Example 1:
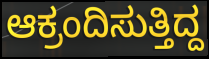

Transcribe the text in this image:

ಆಕ್ರಂದಿಸುತ್ತಿದ್ದ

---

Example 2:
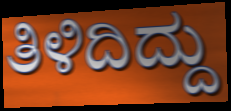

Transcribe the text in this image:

ತಿಳಿದಿದ್ದು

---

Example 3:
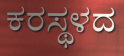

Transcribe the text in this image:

ಕರಸ್ಥಳದ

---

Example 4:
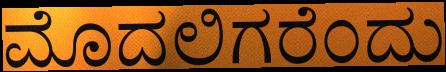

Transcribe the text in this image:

ಮೊದಲಿಗರೆಂದು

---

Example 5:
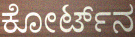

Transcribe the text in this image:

ಕೋರ್ಟ್‍ನ